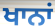
ਖਾਨਾਂ